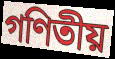
গণিতীয়